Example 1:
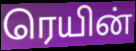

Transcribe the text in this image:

ரெயின்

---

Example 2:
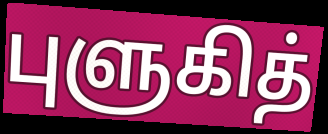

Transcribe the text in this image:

புளுகித்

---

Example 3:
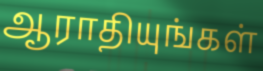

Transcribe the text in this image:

ஆராதியுங்கள்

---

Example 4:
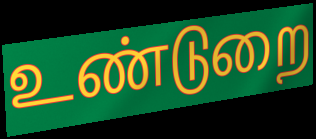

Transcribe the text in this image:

உண்டுறை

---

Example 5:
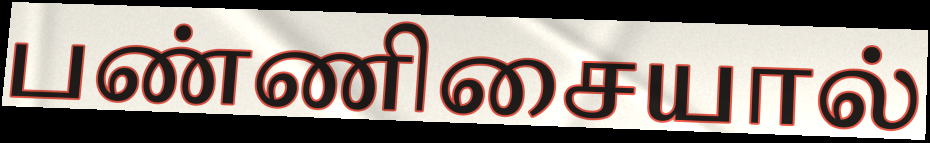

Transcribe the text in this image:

பண்ணிசையால்